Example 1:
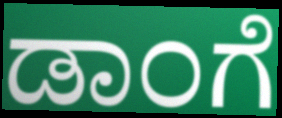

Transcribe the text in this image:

ಡಾಂಗೆ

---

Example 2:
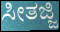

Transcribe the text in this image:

ಸೀತಜ್ಜಿ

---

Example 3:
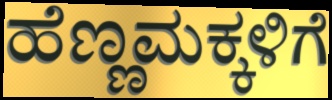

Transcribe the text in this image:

ಹೆಣ್ಣಮಕ್ಕಳಿಗೆ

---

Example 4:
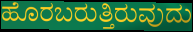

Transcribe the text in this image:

ಹೊರಬರುತ್ತಿರುವುದು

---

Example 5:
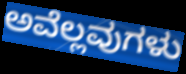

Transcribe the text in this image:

ಅವೆಲ್ಲವುಗಳು